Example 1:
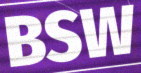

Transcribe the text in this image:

BSW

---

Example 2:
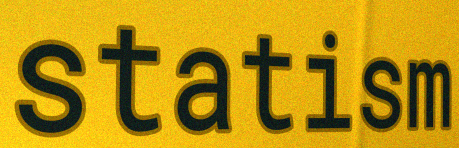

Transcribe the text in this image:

statism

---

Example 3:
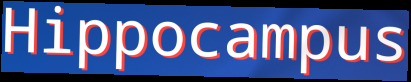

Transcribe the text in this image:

Hippocampus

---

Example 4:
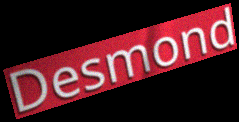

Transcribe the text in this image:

Desmond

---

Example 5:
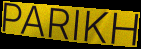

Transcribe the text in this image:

PARIKH